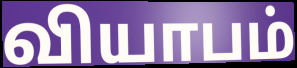
வியாபம்